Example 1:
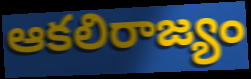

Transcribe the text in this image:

ఆకలిరాజ్యం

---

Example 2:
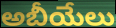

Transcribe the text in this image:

అబీయేలు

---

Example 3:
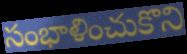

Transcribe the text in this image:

సంభాళించుకొని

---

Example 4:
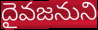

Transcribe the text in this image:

దైవజనుని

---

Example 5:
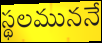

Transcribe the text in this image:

స్థలముననే